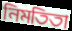
নিমতিতা